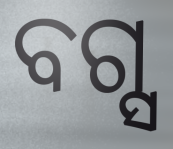
ବଗ୍ସ